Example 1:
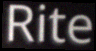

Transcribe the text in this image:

Rite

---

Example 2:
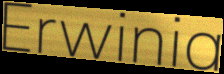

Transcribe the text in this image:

Erwinia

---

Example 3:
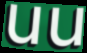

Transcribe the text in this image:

uu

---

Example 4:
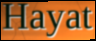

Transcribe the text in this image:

Hayat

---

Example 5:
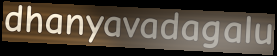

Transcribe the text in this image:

dhanyavadagalu